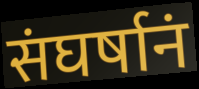
संघर्षानं